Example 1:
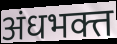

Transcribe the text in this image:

अंधभक्त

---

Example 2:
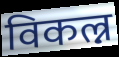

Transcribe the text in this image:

विकल्न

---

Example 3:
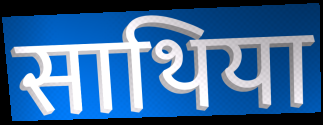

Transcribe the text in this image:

साथिया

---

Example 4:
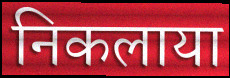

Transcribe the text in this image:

निकलाया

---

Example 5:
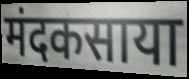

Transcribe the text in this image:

मंदकसाया